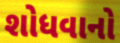
શોધવાનો